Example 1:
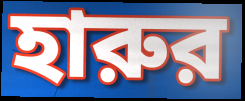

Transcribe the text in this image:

হারুর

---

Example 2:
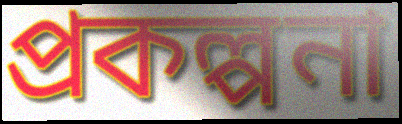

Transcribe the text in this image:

প্রকল্পনা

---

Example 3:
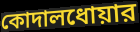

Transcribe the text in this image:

কোদালধোয়ার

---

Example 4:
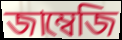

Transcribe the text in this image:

জাম্বেজি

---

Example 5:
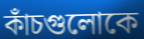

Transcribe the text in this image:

কাঁচগুলোকে